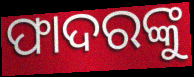
ଫାଦରଙ୍କୁ